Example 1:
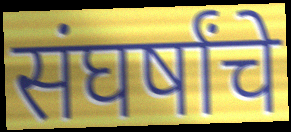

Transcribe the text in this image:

संघर्षांचे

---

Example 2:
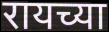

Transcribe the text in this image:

रायच्या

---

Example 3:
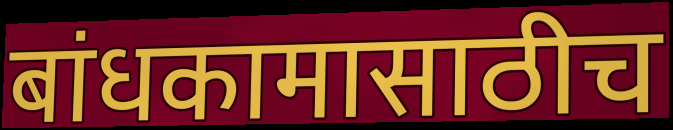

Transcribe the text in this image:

बांधकामासाठीच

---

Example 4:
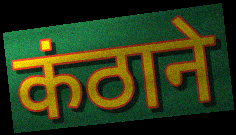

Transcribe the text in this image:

कंठाने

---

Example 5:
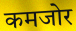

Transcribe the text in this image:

कमजोर